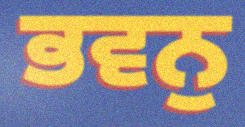
ਭਵਨੁ